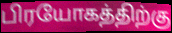
பிரயோகத்திற்கு